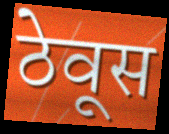
ठेवूस